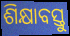
ଶିକ୍ଷାବସ୍ତୁ